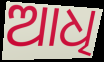
ଆଧି